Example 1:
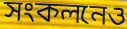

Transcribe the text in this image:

সংকলনেও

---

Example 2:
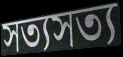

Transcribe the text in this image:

সত্যসত্য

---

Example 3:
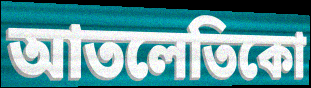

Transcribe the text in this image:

আতলেতিকো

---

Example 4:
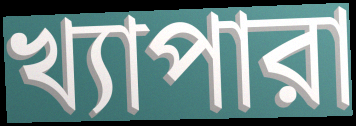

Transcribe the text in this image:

খ্যাপারা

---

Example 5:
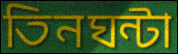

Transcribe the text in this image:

তিনঘন্টা